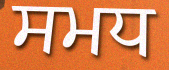
ਸਮਧ